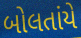
બોલતાંયે